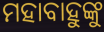
ମହାବାହୁଙ୍କୁ